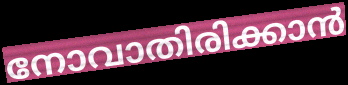
നോവാതിരിക്കാൻ